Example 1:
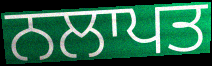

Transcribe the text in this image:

ਨਲਾਪਤ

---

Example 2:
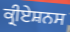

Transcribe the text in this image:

ਕ੍ਰੀਏਸ਼ਨਸ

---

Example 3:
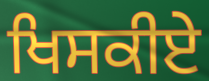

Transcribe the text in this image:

ਖਿਸਕੀਏ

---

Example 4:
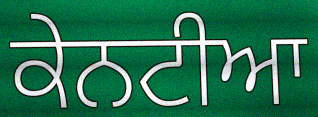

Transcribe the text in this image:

ਕੇਨਟੀਆ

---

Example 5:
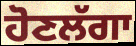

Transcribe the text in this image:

ਹੋਣਲੱਗਾ